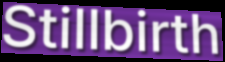
Stillbirth